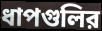
ধাপগুলির